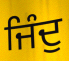
ਜਿੰਦੁ